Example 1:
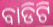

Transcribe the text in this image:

ବାଡିଟି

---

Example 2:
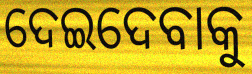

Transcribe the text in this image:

ଦେଇଦେବାକୁ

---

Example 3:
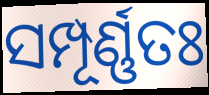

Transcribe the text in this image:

ସମ୍ପୂର୍ଣ୍ଣତଃ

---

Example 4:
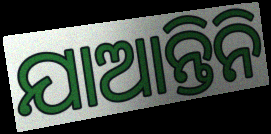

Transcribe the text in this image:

ଯାଆନ୍ତିନି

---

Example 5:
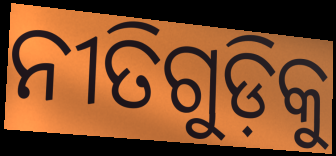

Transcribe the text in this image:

ନୀତିଗୁଡ଼ିକୁ